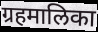
ग्रहमालिका